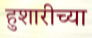
हुशारीच्या